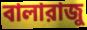
বালারাজু